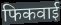
फिकवाई